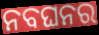
ନବଘନର